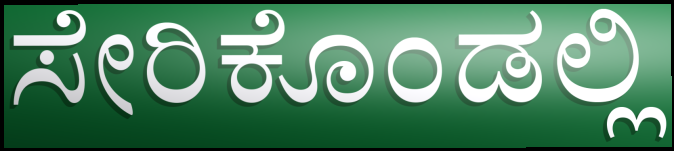
ಸೇರಿಕೊಂಡಲ್ಲಿ